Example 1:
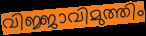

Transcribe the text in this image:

വിജ്ജാവിമുത്തിം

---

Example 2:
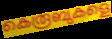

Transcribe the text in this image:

കെരൂബുകളെ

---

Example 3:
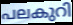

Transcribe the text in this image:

പലകുറി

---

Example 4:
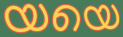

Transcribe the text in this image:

യയെ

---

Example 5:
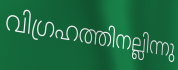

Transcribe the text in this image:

വിഗ്രഹത്തിനല്ലിന്നു